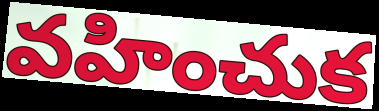
వహించుక